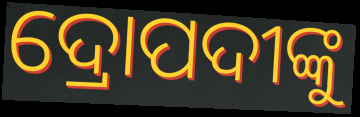
ଦ୍ରୋପଦୀଙ୍କୁ